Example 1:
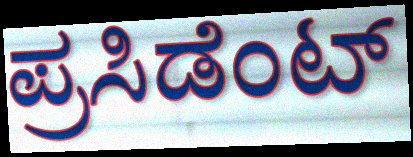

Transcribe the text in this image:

ಪ್ರಸಿಡೆಂಟ್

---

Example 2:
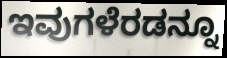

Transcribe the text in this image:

ಇವುಗಳೆರಡನ್ನೂ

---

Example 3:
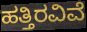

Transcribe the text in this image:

ಹತ್ತಿರವಿವೆ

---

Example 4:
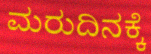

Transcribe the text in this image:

ಮರುದಿನಕ್ಕೆ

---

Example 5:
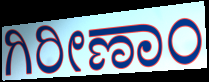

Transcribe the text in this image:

ಗಿರೀಣಾಂ